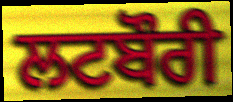
ਲਟਬੌਰੀ